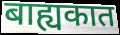
बाह्यकात